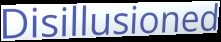
Disillusioned